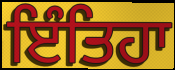
ਇੰਤਿਹਾ